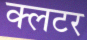
क्लटर